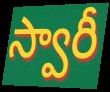
స్వారీ